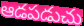
ఆడపడుచు